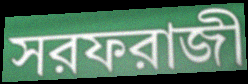
সরফরাজী